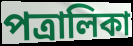
পত্রালিকা